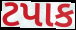
ટપાક